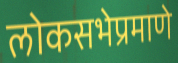
लोकसभेप्रमाणे